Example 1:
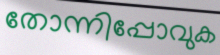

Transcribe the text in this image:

തോന്നിപ്പോവുക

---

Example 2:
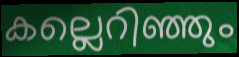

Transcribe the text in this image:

കല്ലെറിഞ്ഞും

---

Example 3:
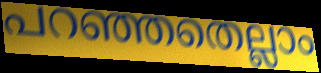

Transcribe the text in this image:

പറഞ്ഞതെല്ലാം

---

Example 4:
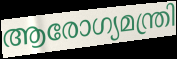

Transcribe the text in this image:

ആരോഗ്യമന്ത്രി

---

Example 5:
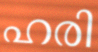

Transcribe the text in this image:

ഹരി